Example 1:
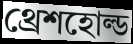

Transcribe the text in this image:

থ্রেশহোল্ড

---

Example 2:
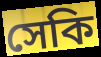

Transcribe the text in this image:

সেকি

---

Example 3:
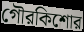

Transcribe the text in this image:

গৌরকিশোর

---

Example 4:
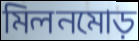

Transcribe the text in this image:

মিলনমোড়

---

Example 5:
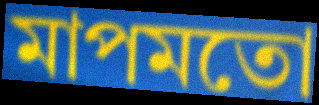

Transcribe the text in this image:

মাপমতো